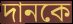
দানকে